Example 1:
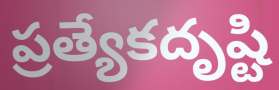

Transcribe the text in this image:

ప్రత్యేకదృష్టి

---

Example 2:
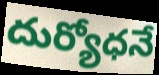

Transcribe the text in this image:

దుర్యోధనే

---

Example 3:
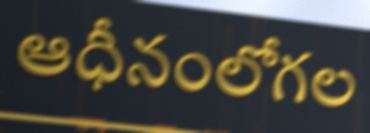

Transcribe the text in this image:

ఆధీనంలోగల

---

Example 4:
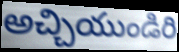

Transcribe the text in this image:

అచ్చియుండిరి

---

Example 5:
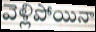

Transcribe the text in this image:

వెళ్లిపోయినా